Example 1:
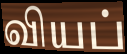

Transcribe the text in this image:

வியப்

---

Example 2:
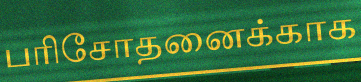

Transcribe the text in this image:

பரிசோதனைக்காக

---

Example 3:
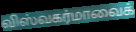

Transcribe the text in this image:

விஸ்வகர்மாவைக்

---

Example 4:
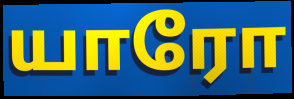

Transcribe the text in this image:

யாரோ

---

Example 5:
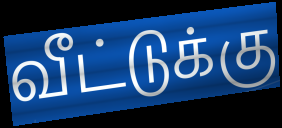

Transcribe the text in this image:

வீட்டுக்கு